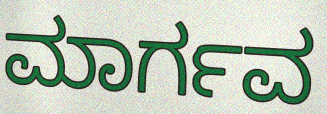
ಮಾರ್ಗವ